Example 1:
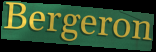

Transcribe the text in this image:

Bergeron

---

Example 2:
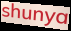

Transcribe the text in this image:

shunya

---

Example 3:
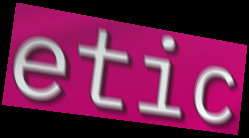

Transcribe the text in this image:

etic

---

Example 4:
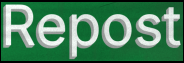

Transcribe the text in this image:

Repost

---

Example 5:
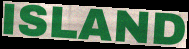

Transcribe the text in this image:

ISLAND